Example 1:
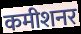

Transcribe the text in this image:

कमीशनर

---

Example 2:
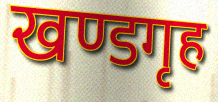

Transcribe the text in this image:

खण्डगृह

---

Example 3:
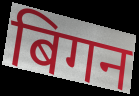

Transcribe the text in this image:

बिगन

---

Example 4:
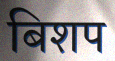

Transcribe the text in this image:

बिशप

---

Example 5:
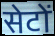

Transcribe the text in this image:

सेटों